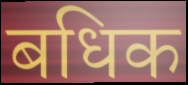
बधिक